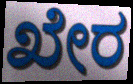
ಖೇರ